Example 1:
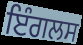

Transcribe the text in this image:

ਇੰਗਲਸ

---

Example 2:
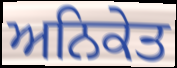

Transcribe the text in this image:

ਅਨਿਕੇਤ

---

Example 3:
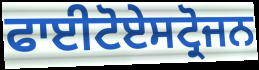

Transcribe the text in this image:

ਫਾਈਟੋਏਸਟ੍ਰੋਜਨ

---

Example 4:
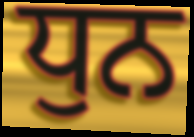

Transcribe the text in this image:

ਧੁਨ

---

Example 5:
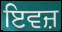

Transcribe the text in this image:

ਇਵਜ਼